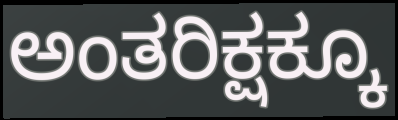
ಅಂತರಿಕ್ಷಕ್ಕೂ